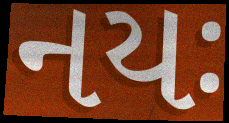
નયઃ